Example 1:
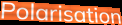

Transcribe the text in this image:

Polarisation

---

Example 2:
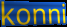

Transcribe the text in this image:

konni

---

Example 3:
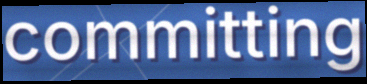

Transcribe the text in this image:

committing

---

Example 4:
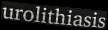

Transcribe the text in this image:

urolithiasis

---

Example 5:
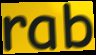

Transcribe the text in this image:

rab